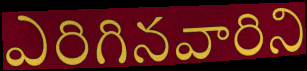
ఎరిగినవారిని